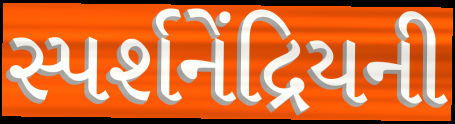
સ્પર્શનેંદ્રિયની